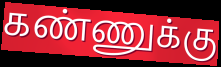
கண்ணுக்கு